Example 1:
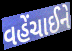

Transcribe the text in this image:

વહેંચાઈને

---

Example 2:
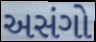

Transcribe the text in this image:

અસંગો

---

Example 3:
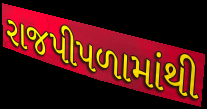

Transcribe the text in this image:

રાજપીપળામાંથી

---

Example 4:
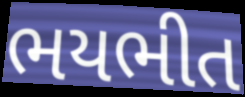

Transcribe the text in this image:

ભયભીત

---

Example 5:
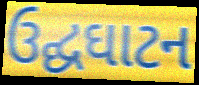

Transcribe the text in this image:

ઉદ્ઘઘાટન